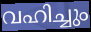
വഹിച്ചും